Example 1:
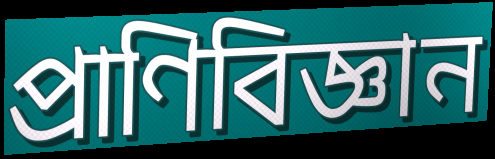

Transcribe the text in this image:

প্রাণিবিজ্ঞান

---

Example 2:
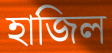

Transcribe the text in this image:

হাজিল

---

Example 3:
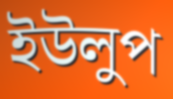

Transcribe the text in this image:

ইউলুপ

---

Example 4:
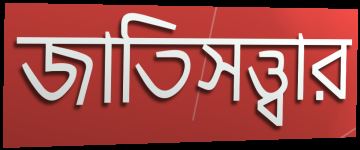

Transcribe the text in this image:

জাতিসত্ত্বার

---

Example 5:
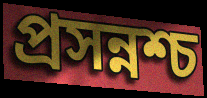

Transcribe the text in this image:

প্রসন্নশ্চ